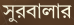
সুরবালার